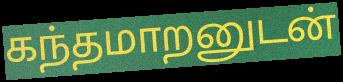
கந்தமாறனுடன்